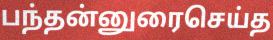
பந்தன்னுரைசெய்த